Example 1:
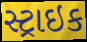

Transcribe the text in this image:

સ્ટ્રાઇક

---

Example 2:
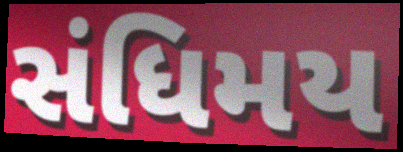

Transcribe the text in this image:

સંધિમય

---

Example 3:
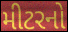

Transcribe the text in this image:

મીટરનો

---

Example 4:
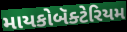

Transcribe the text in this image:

માયકોબૅક્ટેરિયમ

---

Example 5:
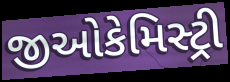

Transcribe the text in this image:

જીઓકેમિસ્ટ્રી